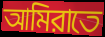
আমিরাতে